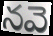
నవె